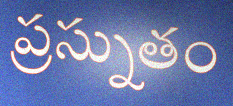
ప్రస్నుతం